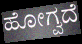
ಹೋಗ್ವದೆ